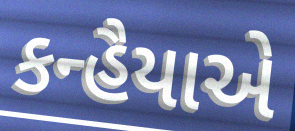
કન્હૈયાએ